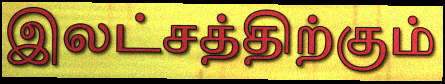
இலட்சத்திற்கும்